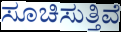
ಸೂಚಿಸುತ್ತಿವೆ